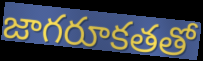
జాగరూకతతో